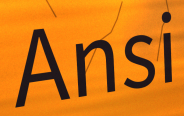
Ansi